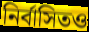
নির্বাসিতও